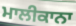
ਮਾਲੀਕਾਨਾ